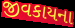
જીવકાયના